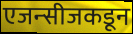
एजन्सीजकडून